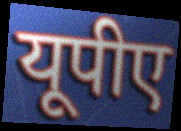
यूपीए